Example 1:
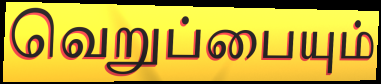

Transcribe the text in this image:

வெறுப்பையும்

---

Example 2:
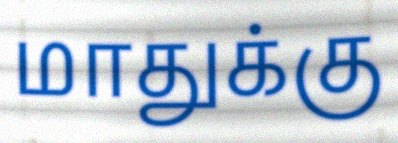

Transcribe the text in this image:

மாதுக்கு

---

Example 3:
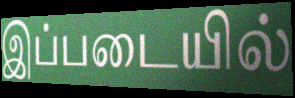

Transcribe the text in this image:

இப்படையில்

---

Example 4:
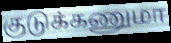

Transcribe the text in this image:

குடுக்கணுமா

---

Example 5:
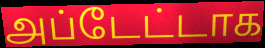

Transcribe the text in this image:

அப்டேட்டாக